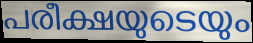
പരീക്ഷയുടെയും